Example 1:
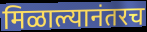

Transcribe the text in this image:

मिळाल्यानंतरच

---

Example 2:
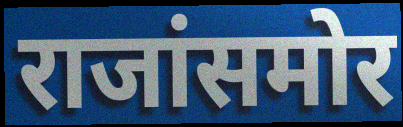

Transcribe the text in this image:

राजांसमोर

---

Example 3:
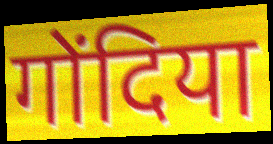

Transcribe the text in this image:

गोंदिया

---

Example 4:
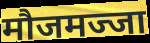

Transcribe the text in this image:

मौजमज्जा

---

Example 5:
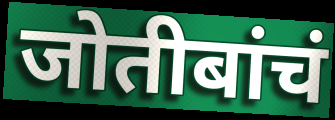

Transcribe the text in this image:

जोतीबांचं